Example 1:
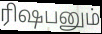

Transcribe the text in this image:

ரிஷபனும்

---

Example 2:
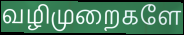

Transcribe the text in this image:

வழிமுறைகளே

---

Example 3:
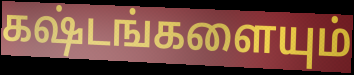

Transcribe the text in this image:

கஷ்டங்களையும்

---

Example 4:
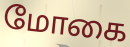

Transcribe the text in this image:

மோகை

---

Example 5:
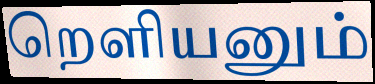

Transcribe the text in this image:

றெளியனும்